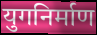
युगनिर्माण